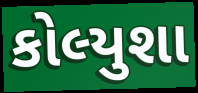
કોલ્યુશા